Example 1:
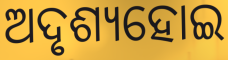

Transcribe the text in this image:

ଅଦୃଶ୍ୟହୋଇ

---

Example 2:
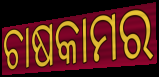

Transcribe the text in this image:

ଚାଷକାମର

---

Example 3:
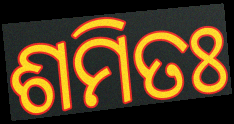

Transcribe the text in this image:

ଶମିତଃ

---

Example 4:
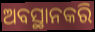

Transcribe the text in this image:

ଅବସ୍ଥାନକରି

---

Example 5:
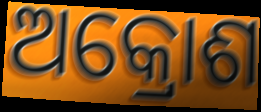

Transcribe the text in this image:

ଅକ୍ରୋଶ